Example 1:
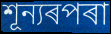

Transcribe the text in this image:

শূন্যৰপৰা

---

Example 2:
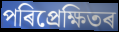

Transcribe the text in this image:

পৰিপ্ৰেক্ষিতৰ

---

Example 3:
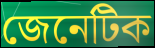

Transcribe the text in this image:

জেনেটিক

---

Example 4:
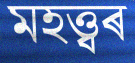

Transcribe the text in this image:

মহত্ত্বৰ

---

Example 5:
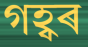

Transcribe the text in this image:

গহ্বৰ